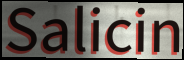
Salicin